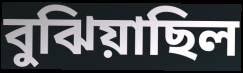
বুঝিয়াছিল